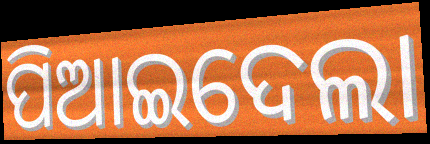
ପିଆଇଦେଲା